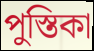
পুস্তিকা